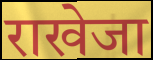
राखेजा